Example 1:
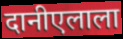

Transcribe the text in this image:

दानीएलाला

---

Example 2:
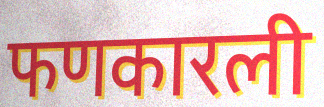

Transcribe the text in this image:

फणकारली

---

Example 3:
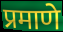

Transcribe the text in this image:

प्रमाणे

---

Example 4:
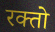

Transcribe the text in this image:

रक्तो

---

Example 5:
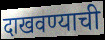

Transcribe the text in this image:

दाखवण्याची